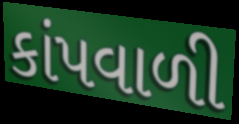
કાંપવાળી